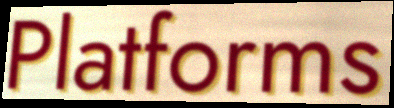
Platforms